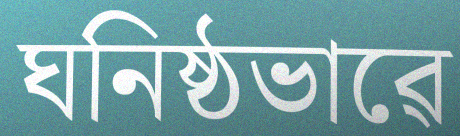
ঘনিষ্ঠভাৱে